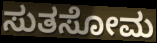
ಸುತಸೋಮ